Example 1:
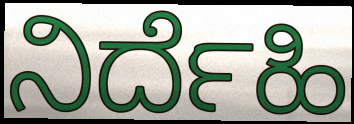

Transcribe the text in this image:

ನಿರ್ದೆಹಿ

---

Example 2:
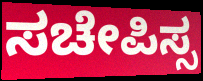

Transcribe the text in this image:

ಸಚೇಪಿಸ್ಸ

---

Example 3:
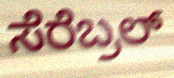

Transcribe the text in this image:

ಸೆರೆಬ್ರಲ್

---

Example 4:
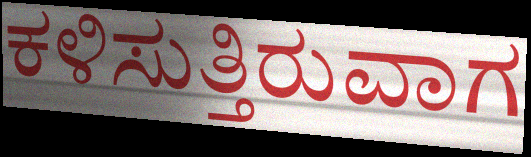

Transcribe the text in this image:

ಕಳಿಸುತ್ತಿರುವಾಗ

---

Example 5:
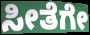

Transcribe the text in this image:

ಸೀತೆಗೇ